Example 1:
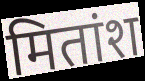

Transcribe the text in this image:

मितांश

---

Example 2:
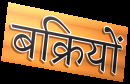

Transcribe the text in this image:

बक्रियों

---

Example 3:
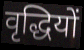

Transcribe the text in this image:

वृद्धियों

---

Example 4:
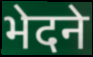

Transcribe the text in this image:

भेदने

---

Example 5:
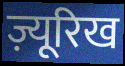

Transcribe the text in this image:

ज़्यूरिख